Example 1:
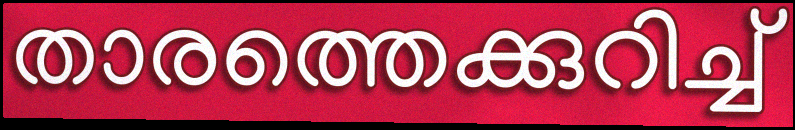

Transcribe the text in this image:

താരത്തെക്കുറിച്ച്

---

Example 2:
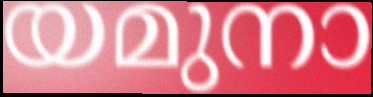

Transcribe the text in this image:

യമുനാ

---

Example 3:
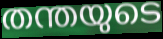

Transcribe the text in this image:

തന്തയുടെ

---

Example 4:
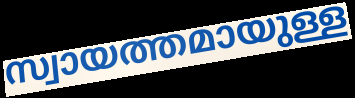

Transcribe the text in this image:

സ്വായത്തമായുള്ള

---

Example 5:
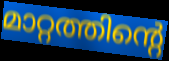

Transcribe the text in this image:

മാറ്റത്തിന്റെ